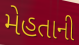
મેહતાની